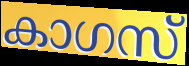
കാഗസ്